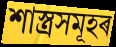
শাস্ত্ৰসমূহৰ